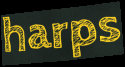
harps